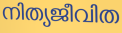
നിത്യജീവിത